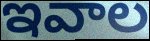
ఇవాల